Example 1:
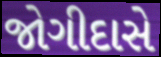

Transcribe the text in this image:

જોગીદાસે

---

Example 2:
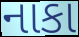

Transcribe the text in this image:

નાકા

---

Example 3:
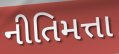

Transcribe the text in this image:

નીતિમત્તા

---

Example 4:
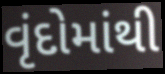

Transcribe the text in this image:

વૃંદોમાંથી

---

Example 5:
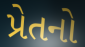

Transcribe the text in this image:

પ્રેતનો